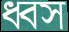
ধ্বস